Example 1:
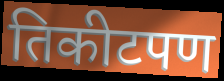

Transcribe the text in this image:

तिकीटपण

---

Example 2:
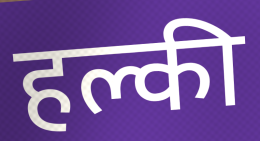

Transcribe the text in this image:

हल्की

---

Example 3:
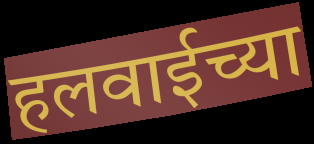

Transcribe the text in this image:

हलवाईच्या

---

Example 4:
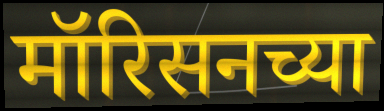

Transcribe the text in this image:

मॉरिसनच्या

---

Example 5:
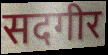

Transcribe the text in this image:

सदगीर